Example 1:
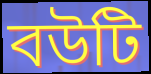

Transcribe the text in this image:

বউটি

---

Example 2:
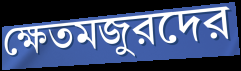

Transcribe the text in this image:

ক্ষেতমজুরদের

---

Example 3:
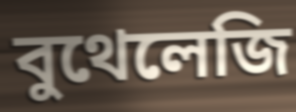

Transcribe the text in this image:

বুথেলেজি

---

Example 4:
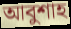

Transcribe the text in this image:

আবুশাহ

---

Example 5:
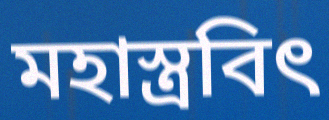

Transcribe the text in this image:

মহাস্ত্রবিৎ